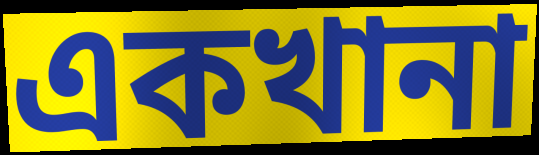
একখানা